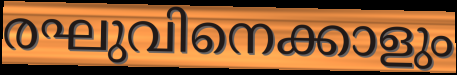
രഘുവിനെക്കാളും